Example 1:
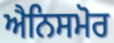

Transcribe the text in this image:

ਐਨਿਸਮੋਰ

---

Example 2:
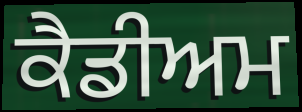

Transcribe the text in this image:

ਕੈਡੀਅਮ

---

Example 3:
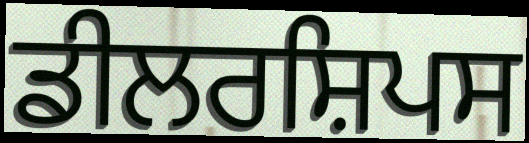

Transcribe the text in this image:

ਡੀਲਰਸ਼ਿਪਸ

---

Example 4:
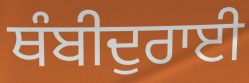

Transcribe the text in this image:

ਥੰਬੀਦੁਰਾਈ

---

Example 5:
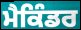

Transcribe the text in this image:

ਮੈਕਿੰਡਰ